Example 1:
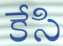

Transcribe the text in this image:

కేసి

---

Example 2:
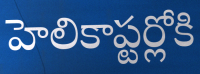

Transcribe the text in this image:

హెలికాప్టర్లోకి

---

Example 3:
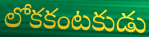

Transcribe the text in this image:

లోకకంటకుడు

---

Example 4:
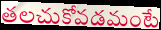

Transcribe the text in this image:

తలచుకోవడమంటే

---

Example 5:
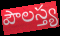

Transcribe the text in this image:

పౌలస్త్య